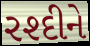
રશ્દીને